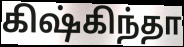
கிஷ்கிந்தா